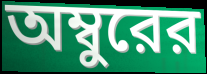
অম্বুরের